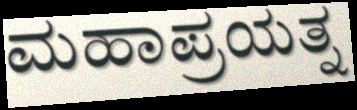
ಮಹಾಪ್ರಯತ್ನ